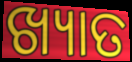
ଖ୍ୟାତ